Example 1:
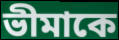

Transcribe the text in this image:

ভীমাকে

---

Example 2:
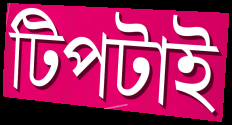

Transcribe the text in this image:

টিপটাই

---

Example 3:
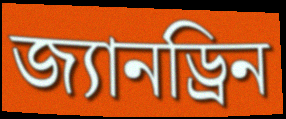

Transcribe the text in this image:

জ্যানড্রিন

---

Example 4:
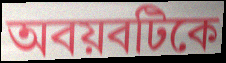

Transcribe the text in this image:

অবয়বটিকে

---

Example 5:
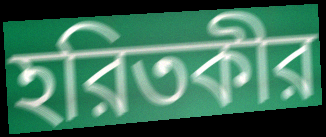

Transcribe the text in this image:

হরিতকীর